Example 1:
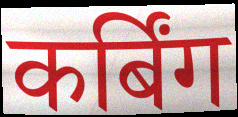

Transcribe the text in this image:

कर्बिंग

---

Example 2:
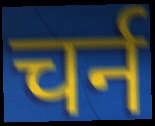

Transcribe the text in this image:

चर्न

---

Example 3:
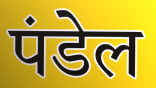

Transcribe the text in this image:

पंडेल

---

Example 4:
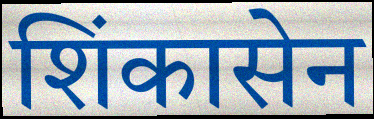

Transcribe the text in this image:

शिंकासेन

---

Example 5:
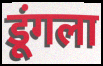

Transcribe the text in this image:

डूंगला